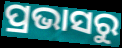
ପ୍ରଭାସରୁ